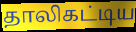
தாலிகட்டிய